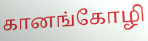
கானங்கோழி